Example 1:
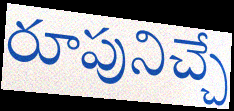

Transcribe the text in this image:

రూపునిచ్చే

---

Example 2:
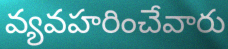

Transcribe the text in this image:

వ్యవహరించేవారు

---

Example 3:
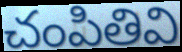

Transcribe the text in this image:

చంపితివి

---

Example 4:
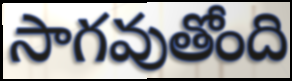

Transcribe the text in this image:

సాగవుతోంది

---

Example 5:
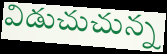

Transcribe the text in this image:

విడుచుచున్న